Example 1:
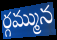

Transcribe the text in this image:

ర్గమ్మున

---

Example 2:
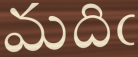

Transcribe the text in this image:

మదిఁ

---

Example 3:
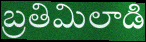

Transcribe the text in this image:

బ్రతిమిలాడి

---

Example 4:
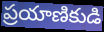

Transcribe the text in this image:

ప్రయాణికుడి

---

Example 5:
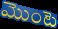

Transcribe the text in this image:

మొంటె